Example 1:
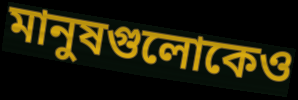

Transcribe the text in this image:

মানুষগুলোকেও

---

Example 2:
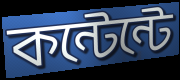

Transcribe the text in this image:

কন্টেন্টে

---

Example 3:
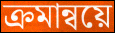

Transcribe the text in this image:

ক্রমান্বয়ে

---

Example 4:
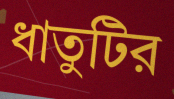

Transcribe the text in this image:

ধাতুটির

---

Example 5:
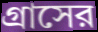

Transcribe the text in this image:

গ্রাসের